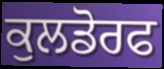
ਕੁਲਡੋਰਫ